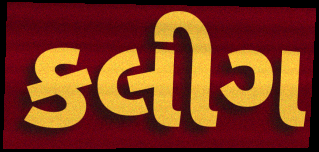
કલીગ